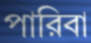
পারিবা